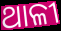
ଥାଳୀ